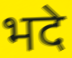
भदे